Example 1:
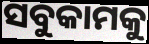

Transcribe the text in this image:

ସବୁକାମକୁ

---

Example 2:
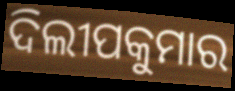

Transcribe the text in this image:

ଦିଲୀପକୁମାର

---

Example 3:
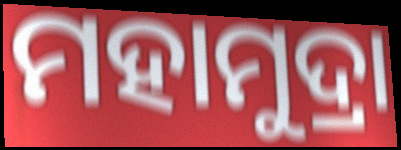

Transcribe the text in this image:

ମହାମୁଦ୍ରା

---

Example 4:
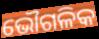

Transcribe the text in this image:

ଭୌଗଳିକ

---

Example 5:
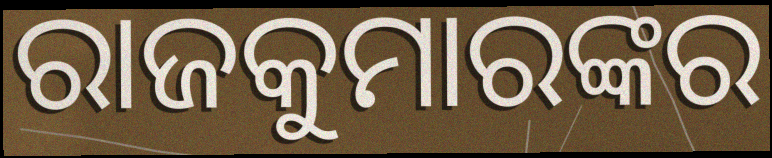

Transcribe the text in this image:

ରାଜକୁମାରଙ୍କର